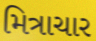
મિત્રાચાર